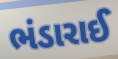
ભંડારાઈ